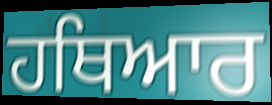
ਹਥਿਆਰ